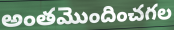
అంతమొందించగల